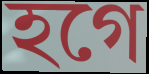
হগে